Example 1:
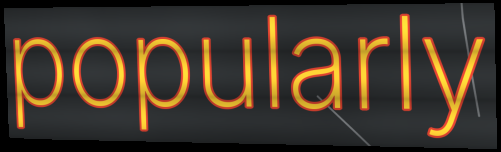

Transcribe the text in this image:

popularly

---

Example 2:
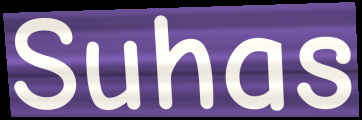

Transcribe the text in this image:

Suhas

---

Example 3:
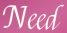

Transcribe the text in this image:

Need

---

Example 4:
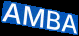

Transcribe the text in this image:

AMBA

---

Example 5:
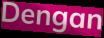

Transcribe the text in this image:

Dengan